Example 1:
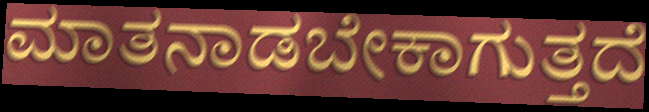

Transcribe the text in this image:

ಮಾತನಾಡಬೇಕಾಗುತ್ತದೆ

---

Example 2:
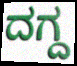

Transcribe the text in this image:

ದಗ್ದ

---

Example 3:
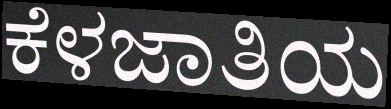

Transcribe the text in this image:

ಕೆಳಜಾತಿಯ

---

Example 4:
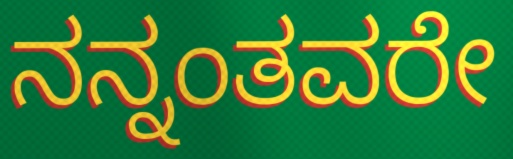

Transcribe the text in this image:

ನನ್ನಂತವರೇ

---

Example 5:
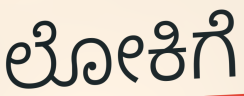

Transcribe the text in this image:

ಲೋಕಿಗೆ